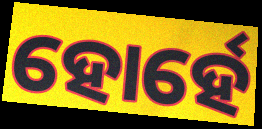
ହୋର୍ହେ